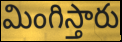
మింగిస్తారు